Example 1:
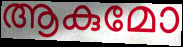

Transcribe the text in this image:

ആകുമോ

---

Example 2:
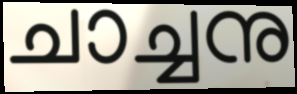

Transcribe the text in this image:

ചാച്ചനു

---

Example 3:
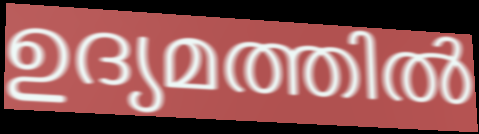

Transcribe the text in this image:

ഉദ്യമത്തിൽ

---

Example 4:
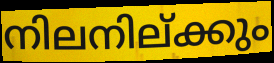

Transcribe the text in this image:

നിലനില്ക്കും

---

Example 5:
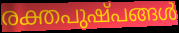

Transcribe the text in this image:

രക്തപുഷ്പങ്ങൾ